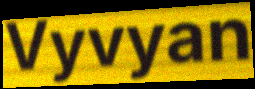
Vyvyan